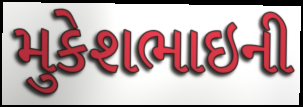
મુકેશભાઇની